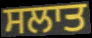
ਸਲਾਤ